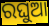
ରଘୁଆ